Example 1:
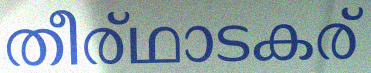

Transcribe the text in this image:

തീര്ഥാടകര്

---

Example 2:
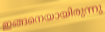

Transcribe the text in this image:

ഇങ്ങനെയായിരുന്നു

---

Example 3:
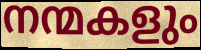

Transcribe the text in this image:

നന്മകളും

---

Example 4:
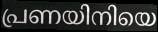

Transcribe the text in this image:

പ്രണയിനിയെ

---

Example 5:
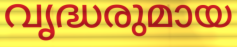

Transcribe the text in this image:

വൃദ്ധരുമായ